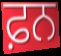
ਫ਼ਨ